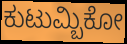
ಕುಟುಮ್ಬಿಕೋ